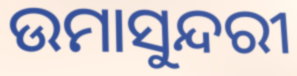
ଉମାସୁନ୍ଦରୀ